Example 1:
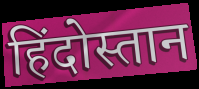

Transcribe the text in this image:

हिंदोस्तान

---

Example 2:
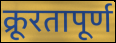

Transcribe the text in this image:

क्रूरतापूर्ण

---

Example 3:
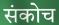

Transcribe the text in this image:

संकोच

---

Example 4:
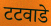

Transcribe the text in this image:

टटवाडे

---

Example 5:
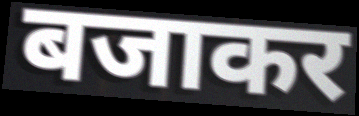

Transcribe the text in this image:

बजाकर